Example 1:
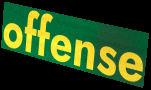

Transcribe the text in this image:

offense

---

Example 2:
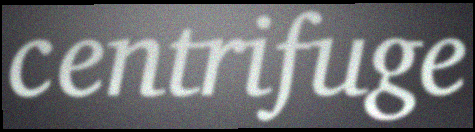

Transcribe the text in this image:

centrifuge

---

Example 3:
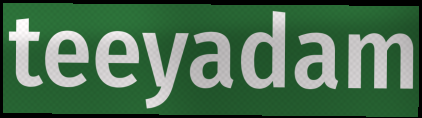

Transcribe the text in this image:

teeyadam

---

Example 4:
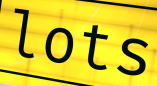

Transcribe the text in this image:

lots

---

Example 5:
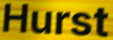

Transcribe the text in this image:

Hurst